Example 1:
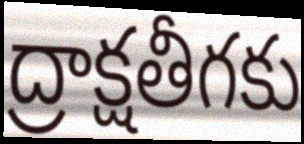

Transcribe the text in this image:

ద్రాక్షతీగకు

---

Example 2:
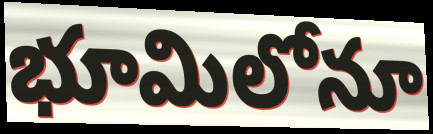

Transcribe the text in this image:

భూమిలోనూ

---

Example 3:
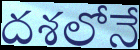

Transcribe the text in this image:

దశలోనే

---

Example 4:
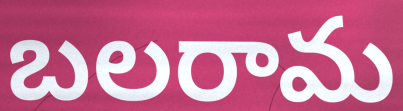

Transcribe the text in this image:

బలరామ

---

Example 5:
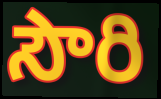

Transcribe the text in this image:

సౌరి